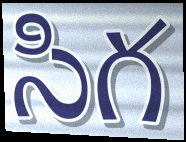
సిగ